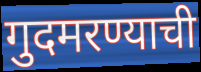
गुदमरण्याची